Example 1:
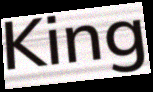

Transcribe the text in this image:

King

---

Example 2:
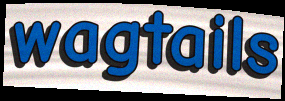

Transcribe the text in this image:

wagtails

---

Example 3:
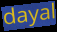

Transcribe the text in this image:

dayal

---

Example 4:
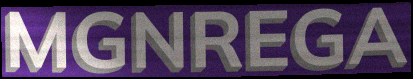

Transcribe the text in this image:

MGNREGA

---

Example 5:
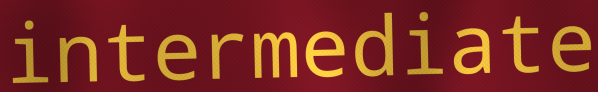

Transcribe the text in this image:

intermediate